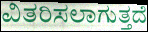
ವಿತರಿಸಲಾಗುತ್ತದೆ